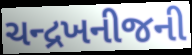
ચન્દ્રખનીજની